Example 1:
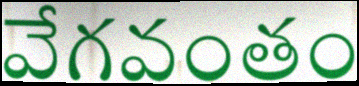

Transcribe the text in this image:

వేగవంతం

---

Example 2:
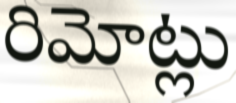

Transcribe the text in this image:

రిమోట్లు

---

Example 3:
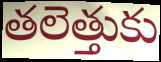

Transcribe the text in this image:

తలెత్తుకు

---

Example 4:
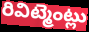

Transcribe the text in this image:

రివిట్మెంట్లు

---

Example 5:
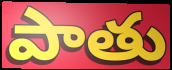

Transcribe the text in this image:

పాతు